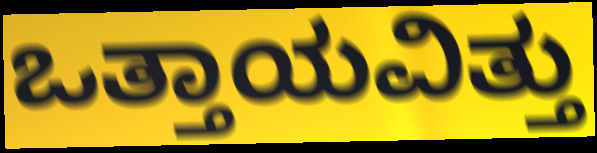
ಒತ್ತಾಯವಿತ್ತು